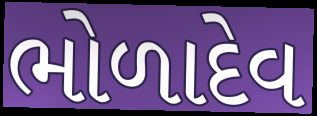
ભોળાદેવ